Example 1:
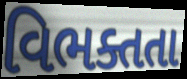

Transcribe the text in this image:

વિભક્તતા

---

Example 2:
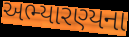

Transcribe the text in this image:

અભ્યારણ્યના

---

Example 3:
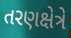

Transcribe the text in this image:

તરણક્ષેત્રે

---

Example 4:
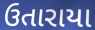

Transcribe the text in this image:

ઉતારાયા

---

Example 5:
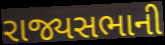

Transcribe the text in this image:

રાજ્યસભાની